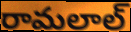
రామలాల్